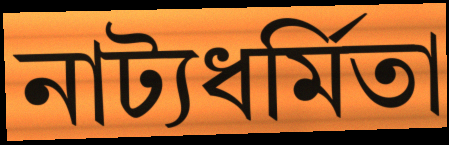
নাট্যধর্মিতা